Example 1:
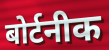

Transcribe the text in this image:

बोर्टनीक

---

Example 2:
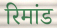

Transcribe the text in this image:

रिमांड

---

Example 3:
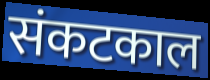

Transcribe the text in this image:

संकटकाल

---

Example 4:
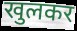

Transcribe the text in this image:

खुलकर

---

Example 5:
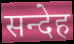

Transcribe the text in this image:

सन्देह